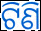
ଟିଣି